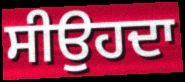
ਸੀਉਹਦਾ